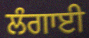
ਲੰਗਾਈ